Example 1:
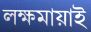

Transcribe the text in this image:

লক্ষমায়াই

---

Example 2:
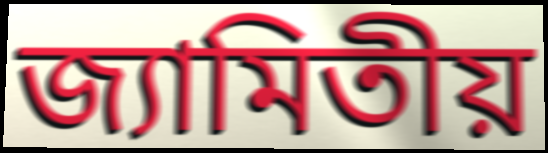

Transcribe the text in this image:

জ্যামিতীয়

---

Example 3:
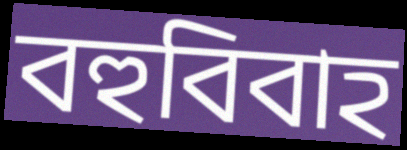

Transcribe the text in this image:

বহুবিবাহ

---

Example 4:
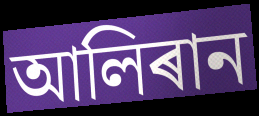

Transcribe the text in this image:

আলিৰান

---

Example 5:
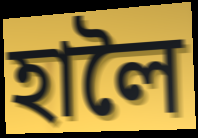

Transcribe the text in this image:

হালৈ